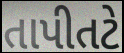
તાપીતટે